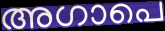
അഗാപെ